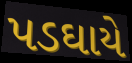
પડઘાયે